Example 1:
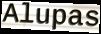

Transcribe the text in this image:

Alupas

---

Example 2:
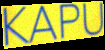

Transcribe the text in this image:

KAPU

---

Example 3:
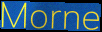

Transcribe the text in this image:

Morne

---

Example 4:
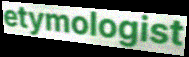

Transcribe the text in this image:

etymologist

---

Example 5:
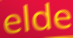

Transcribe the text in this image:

elde